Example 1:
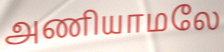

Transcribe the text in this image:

அணியாமலே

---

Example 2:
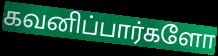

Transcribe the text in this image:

கவனிப்பார்களோ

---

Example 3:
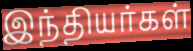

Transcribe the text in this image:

இந்தியர்கள்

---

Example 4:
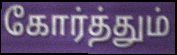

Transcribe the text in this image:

கோர்த்தும்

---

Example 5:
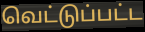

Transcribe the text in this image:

வெட்டுப்பட்ட